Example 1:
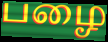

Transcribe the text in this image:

பழை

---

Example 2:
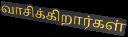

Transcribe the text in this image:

வாசிக்கிறார்கள்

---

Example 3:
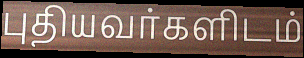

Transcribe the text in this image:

புதியவர்களிடம்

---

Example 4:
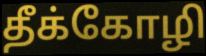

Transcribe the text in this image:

தீக்கோழி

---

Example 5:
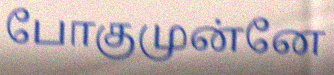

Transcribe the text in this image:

போகுமுன்னே